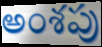
అంశపు